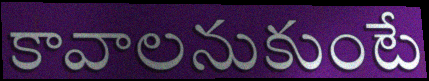
కావాలనుకుంటే